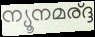
ന്യൂനമര്ദ്ദ